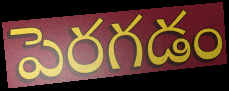
పెరగడం